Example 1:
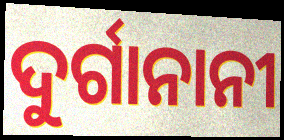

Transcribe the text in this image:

ଦୁର୍ଗାନାନୀ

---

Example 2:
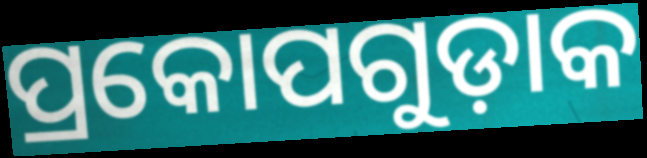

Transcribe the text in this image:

ପ୍ରକୋପଗୁଡ଼ାକ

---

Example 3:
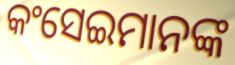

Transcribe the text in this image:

କଂସେଇମାନଙ୍କ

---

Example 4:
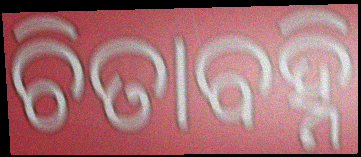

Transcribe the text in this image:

ଚିତାବହ୍ନି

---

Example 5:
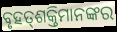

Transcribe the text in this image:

ବୃହତ୍‍ଶକ୍ତିମାନଙ୍କର